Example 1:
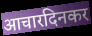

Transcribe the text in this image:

आचारदिनकर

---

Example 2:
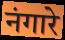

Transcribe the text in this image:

नंगारे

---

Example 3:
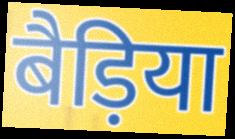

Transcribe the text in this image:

बैड़िया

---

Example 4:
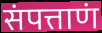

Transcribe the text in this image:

संपत्ताणं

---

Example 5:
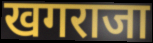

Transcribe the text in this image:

खगराजा